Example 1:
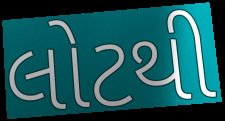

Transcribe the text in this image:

લોટથી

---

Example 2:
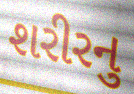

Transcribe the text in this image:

શરીરનુ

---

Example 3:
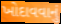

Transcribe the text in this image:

ખોદાવવાનું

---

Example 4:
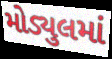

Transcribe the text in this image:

મોડ્યુલમાં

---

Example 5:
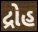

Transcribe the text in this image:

દ્રોહ